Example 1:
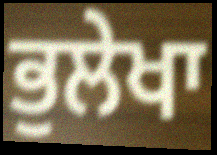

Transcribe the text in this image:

ਭੁਲੇਖਾ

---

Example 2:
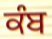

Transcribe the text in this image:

ਕੰਬ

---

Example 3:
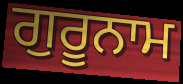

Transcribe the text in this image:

ਗੁਰੂਨਾਮ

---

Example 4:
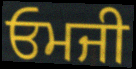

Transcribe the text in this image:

ਓਮਜੀ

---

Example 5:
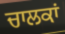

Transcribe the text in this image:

ਚਾਲਕਾਂ